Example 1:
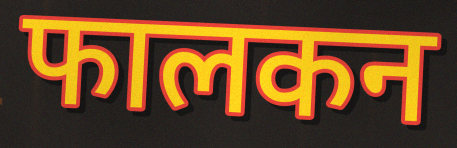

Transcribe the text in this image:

फालकन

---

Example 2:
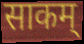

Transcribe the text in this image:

साकम्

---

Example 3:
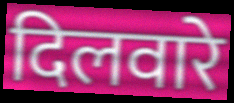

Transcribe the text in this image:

दिलवारे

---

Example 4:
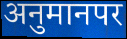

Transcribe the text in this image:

अनुमानपर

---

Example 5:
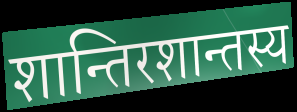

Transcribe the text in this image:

शान्तिरशान्तस्य